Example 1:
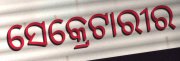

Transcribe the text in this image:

ସେକ୍ରେଟାରୀର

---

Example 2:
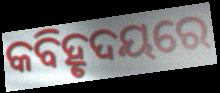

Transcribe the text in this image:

କବିହୃଦୟରେ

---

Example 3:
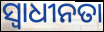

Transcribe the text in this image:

ସ୍ବାଧୀନତା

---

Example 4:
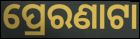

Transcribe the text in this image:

ପ୍ରେରଣାଟା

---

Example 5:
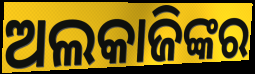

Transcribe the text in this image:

ଅଲକାଜିଙ୍କର